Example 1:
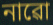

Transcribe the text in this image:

নাৱো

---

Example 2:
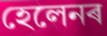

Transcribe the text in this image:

হেলেনৰ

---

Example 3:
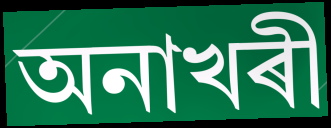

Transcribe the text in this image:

অনাখৰী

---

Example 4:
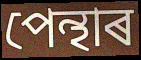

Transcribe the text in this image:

পেন্থাৰ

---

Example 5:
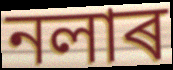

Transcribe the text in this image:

নলাৰ